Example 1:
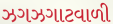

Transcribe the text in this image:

ઝગઝગાટવાળી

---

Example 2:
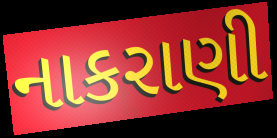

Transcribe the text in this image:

નાકરાણી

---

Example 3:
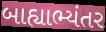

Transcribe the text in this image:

બાહ્યાભ્યંતર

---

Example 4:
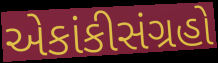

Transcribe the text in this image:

એકાંકીસંગ્રહો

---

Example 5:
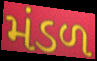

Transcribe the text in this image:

મંડળ